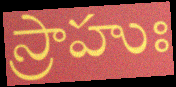
స్రాహుః